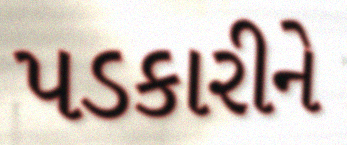
પડકારીને